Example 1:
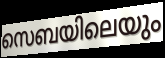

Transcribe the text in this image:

സെബയിലെയും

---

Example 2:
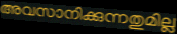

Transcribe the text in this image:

അവസാനിക്കുന്നതുമില്ല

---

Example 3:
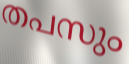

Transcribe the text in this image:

തപസും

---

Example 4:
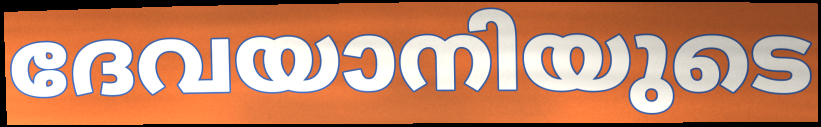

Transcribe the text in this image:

ദേവയാനിയുടെ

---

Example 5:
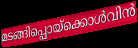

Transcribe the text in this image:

മടങ്ങിപ്പൊയ്ക്കൊൾവിൻ